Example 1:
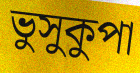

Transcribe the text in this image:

ভুসুকুপা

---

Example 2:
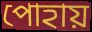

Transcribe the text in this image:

পোহায়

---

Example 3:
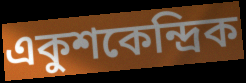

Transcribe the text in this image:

একুশকেন্দ্রিক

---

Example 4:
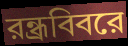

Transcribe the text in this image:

রন্ধ্রবিবরে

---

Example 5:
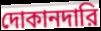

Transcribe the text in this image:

দোকানদারি